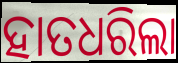
ହାତଧରିଲା